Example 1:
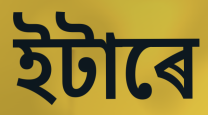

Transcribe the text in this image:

ইটাৰে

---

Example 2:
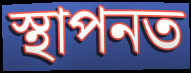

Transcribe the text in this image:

স্থাপনত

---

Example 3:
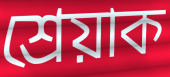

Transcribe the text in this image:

শ্ৰেয়াক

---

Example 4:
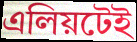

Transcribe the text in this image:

এলিয়টেই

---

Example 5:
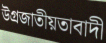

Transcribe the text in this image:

উগ্ৰজাতীয়তাবাদী